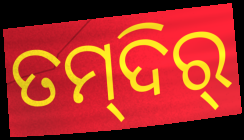
ତମ୍‍ଦିର୍